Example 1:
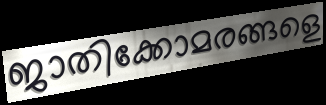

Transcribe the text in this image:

ജാതിക്കോമരങ്ങളെ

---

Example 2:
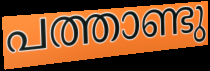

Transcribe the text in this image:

പത്താണ്ടു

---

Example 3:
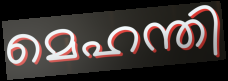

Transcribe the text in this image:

മെഹന്തി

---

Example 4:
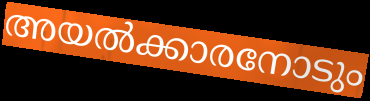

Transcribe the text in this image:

അയൽക്കാരനോടും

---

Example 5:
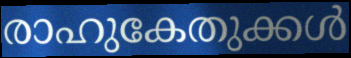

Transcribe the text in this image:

രാഹുകേതുക്കൾ